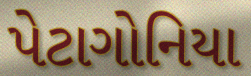
પેટાગોનિયા